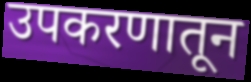
उपकरणातून